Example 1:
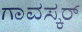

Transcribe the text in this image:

ಗಾವಸ್ಕರ್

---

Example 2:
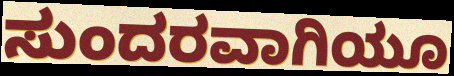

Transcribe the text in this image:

ಸುಂದರವಾಗಿಯೂ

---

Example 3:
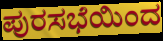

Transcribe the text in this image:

ಪುರಸಭೆಯಿಂದ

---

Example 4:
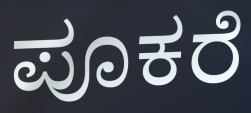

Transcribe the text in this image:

ಪೂಕರೆ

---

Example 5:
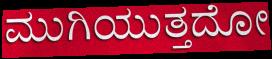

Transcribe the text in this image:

ಮುಗಿಯುತ್ತದೋ